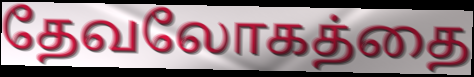
தேவலோகத்தை